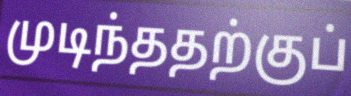
முடிந்ததற்குப்